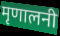
मृणालनी